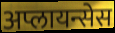
अप्लायन्सेस